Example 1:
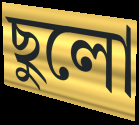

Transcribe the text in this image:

ছুলো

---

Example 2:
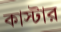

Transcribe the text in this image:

কাস্টার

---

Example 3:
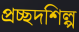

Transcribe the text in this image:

প্রচ্ছদশিল্প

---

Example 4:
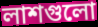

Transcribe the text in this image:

লাশগুলো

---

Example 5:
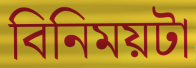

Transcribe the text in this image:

বিনিময়টা